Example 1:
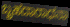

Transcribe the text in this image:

ಬೃಹದಾರಾಧನಾ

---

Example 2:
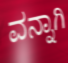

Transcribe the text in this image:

ವನ್ನಾಗಿ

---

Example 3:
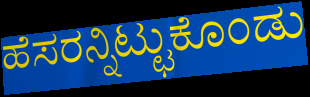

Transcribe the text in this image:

ಹೆಸರನ್ನಿಟ್ಟುಕೊಂಡು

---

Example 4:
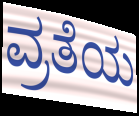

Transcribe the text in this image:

ವ್ರತೆಯ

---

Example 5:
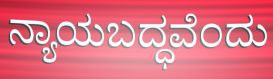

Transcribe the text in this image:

ನ್ಯಾಯಬದ್ಧವೆಂದು